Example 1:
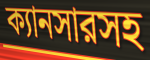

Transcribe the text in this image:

ক্যানসারসহ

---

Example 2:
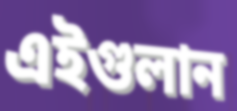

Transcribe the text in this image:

এইগুলান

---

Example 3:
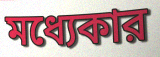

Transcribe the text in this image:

মধ্যেকার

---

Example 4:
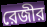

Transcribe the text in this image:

রেজীর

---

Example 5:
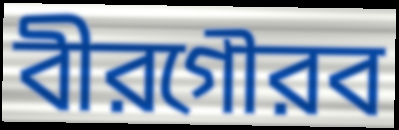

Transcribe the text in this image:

বীরগৌরব